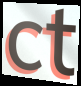
ct